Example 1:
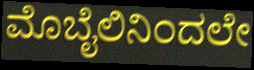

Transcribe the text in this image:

ಮೊಬೈಲಿನಿಂದಲೇ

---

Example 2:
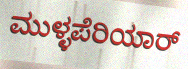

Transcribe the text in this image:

ಮುಳ್ಳಪೆರಿಯಾರ್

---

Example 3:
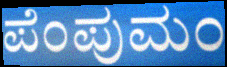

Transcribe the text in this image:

ಪೆಂಪುಮಂ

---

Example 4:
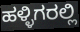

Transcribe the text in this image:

ಹಳ್ಳಿಗರಲ್ಲಿ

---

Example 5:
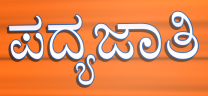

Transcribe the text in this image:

ಪದ್ಯಜಾತಿ